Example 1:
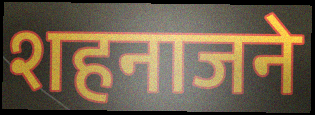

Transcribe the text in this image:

शहनाजने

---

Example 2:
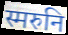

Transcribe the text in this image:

स्मरुनि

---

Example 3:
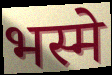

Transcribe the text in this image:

भस्मे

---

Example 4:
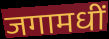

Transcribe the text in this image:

जगामधीं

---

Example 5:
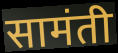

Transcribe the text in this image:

सामंती